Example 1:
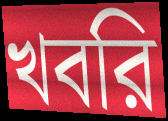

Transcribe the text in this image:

খবরি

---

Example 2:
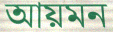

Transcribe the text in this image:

আয়মন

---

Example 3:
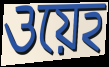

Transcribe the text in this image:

ওয়েহ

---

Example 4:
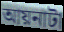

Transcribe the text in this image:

আয়নাটা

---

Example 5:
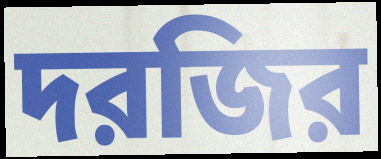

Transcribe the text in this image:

দরজির